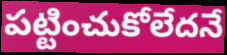
పట్టించుకోలేదనే